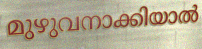
മുഴുവനാക്കിയാൽ